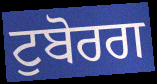
ਟੁਬੋਰਗ